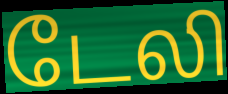
டேலி